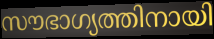
സൗഭാഗ്യത്തിനായി